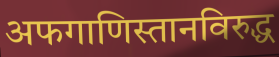
अफगाणिस्तानविरुद्ध